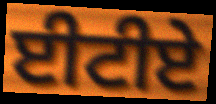
ਈਟੀਏ